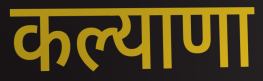
कल्याणा